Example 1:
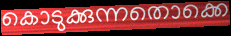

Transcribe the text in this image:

കൊടുക്കുന്നതൊക്കെ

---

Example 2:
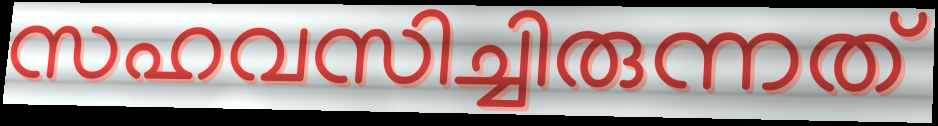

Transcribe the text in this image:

സഹവസിച്ചിരുന്നത്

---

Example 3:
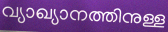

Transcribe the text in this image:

വ്യാഖ്യാനത്തിനുള്ള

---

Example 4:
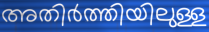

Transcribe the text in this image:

അതിർത്തിയിലുള്ള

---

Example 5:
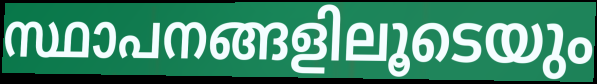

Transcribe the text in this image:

സ്ഥാപനങ്ങളിലൂടെയും